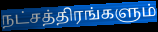
நட்சத்திரங்களும்